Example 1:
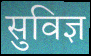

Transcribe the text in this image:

सुविज्ञ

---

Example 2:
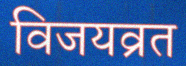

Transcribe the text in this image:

विजयव्रत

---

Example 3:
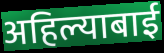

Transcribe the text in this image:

अहिल्याबाई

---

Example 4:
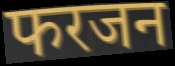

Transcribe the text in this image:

फरजन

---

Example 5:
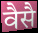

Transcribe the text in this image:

वैसै